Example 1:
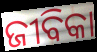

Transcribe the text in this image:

ଜୀବିକା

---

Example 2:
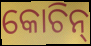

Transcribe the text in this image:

କୋଚିନ୍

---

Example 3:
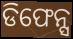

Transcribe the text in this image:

ଡିଫେନ୍ସ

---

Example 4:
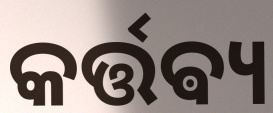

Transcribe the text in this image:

କର୍ତ୍ତଵ୍ୟ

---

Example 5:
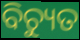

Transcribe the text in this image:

ବିଚ୍ୟୁତ